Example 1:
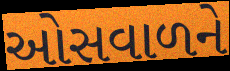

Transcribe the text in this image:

ઓસવાળને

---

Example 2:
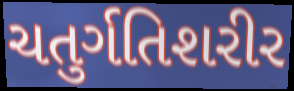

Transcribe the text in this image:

ચતુર્ગતિશરીર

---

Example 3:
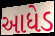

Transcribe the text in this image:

આધેડ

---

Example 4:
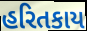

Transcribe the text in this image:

હરિતકાય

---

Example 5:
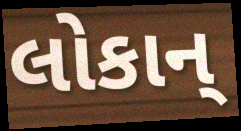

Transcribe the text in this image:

લોકાન્